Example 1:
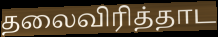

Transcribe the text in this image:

தலைவிரித்தாட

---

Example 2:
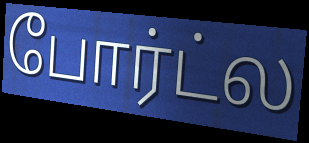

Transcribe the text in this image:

போர்ட்ல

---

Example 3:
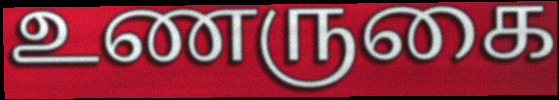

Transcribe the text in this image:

உணருகை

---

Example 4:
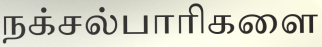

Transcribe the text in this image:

நக்சல்பாரிகளை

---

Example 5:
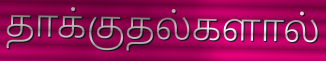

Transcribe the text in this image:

தாக்குதல்களால்